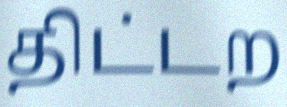
திட்டற